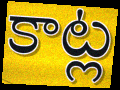
కాట్ల